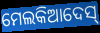
ମେଲକିଆଦେସ୍